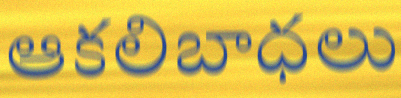
ఆకలిబాధలు